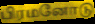
பிரமனோடு